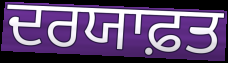
ਦਰਯਾਫ਼ਤ